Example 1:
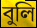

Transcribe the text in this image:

বুলি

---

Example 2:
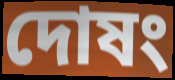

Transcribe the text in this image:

দোষং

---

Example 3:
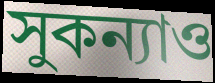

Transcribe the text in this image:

সুকন্যাও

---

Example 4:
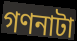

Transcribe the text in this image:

গণনাটা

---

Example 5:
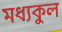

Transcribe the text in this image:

মধ্যকুল